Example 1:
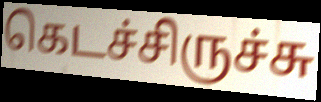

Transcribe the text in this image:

கெடச்சிருச்சு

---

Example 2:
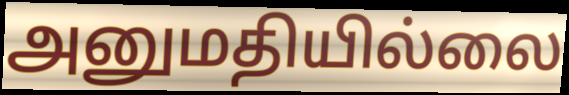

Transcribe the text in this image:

அனுமதியில்லை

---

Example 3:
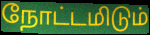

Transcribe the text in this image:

நோட்டமிடும்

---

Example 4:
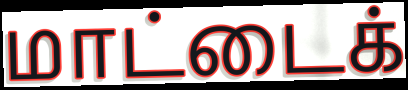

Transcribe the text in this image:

மாட்டைக்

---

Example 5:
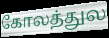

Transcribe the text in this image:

கோலத்துல